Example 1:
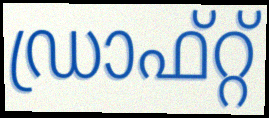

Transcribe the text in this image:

ഡ്രാഫ്റ്റ്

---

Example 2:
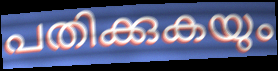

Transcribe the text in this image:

പതിക്കുകയും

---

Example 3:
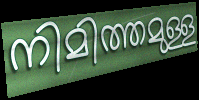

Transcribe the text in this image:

നിമിത്തമുള്ള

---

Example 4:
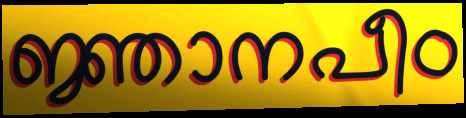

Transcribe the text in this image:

ജ്ഞാനപീഠ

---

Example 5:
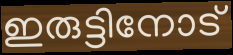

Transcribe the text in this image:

ഇരുട്ടിനോട്